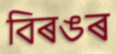
বিৰঙৰ